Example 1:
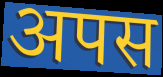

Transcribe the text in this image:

अपस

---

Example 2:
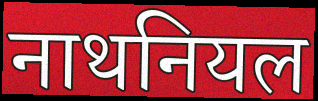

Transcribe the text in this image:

नाथनियल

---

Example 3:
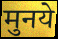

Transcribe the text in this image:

मुनये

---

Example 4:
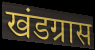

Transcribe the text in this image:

खंडग्रास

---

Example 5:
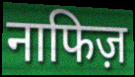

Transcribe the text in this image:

नाफिज़